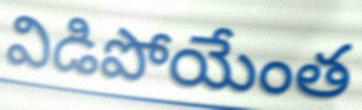
విడిపోయేంత